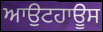
ਆਉਟਹਾਊਸ